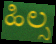
ಹಿಲ್ಸ